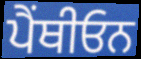
ਪੈਂਥੀਓਨ